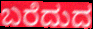
ಬರೆದುದ